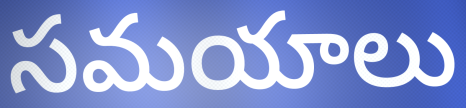
సమయాలు